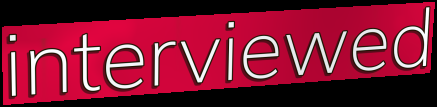
interviewed